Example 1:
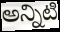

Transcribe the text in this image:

అన్నిటి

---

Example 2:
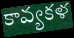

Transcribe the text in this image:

కావ్యకళ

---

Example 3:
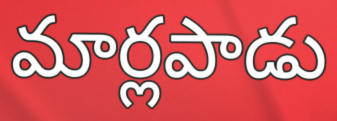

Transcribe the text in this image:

మార్లపాడు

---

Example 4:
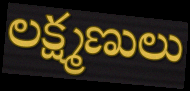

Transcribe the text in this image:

లక్ష్మణులు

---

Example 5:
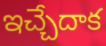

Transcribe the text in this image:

ఇచ్చేదాక